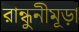
রান্ধুনীমূড়া